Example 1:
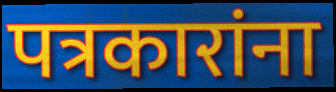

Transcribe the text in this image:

पत्रकारांना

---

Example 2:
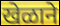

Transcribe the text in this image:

खेळाने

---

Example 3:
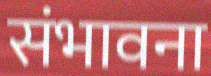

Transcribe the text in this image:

संभावना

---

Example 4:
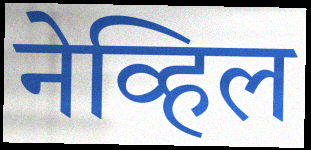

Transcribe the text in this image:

नेव्हिल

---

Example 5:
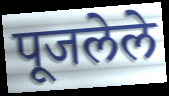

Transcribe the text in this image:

पूजलेले